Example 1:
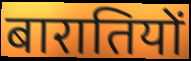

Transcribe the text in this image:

बारातियों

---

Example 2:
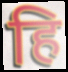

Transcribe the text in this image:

हि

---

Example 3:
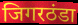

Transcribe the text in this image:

जिगरठंडा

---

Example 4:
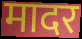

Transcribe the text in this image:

मादर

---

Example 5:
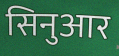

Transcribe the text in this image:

सिनुआर